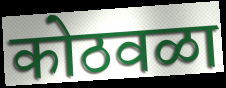
कोठवळा